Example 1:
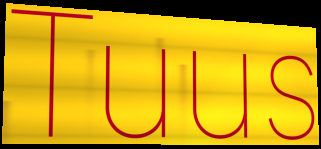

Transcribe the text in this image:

Tuus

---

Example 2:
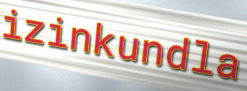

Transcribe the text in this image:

izinkundla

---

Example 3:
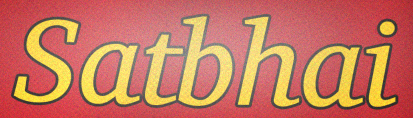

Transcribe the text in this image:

Satbhai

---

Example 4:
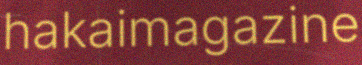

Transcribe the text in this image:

hakaimagazine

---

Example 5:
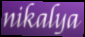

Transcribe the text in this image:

nikalya